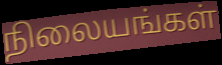
நிலையங்கள்